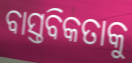
ବାସ୍ତବିକତାକୁ